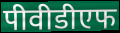
पीवीडीएफ